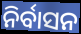
ନିର୍ବାସନ